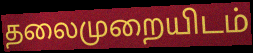
தலைமுறையிடம்